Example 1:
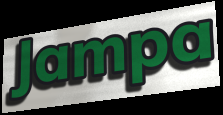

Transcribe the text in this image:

Jampa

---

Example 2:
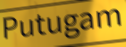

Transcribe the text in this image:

Putugam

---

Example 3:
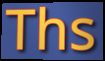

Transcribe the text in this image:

Ths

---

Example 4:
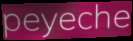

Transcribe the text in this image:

peyeche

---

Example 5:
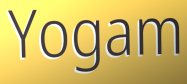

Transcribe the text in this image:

Yogam